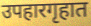
उपहारगृहात